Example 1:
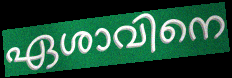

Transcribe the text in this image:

ഏശാവിനെ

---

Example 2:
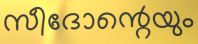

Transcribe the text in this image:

സീദോന്റെയും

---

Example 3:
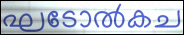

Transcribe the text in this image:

ഘടോൽകച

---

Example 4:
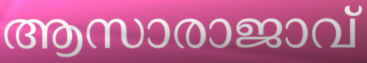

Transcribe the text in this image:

ആസാരാജാവ്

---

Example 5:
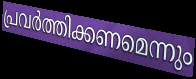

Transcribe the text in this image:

പ്രവർത്തിക്കണമെന്നും